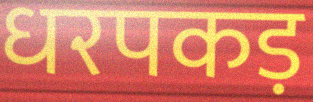
धरपकड़